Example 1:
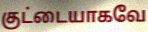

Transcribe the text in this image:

குட்டையாகவே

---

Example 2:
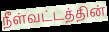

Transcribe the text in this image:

நீள்வட்டத்தின்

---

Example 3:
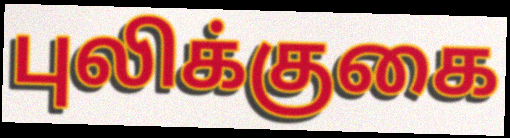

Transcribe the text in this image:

புலிக்குகை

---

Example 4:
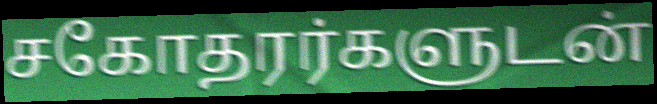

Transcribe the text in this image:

சகோதரர்களுடன்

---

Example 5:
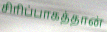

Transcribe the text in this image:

சிரிப்பாகத்தான்